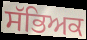
ਸੱਭਿਅਕ